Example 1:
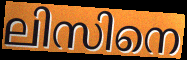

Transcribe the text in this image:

ലിസിനെ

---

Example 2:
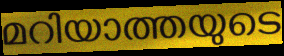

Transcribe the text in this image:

മറിയാത്തയുടെ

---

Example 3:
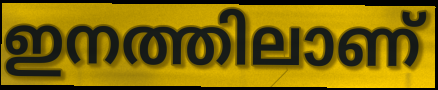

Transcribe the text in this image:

ഇനത്തിലാണ്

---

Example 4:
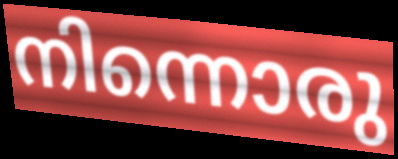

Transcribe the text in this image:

നിന്നൊരു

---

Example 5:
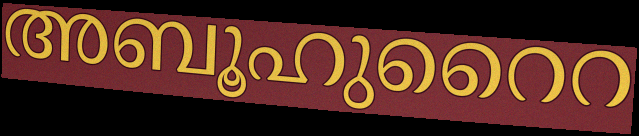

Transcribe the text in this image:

അബൂഹുറൈറ